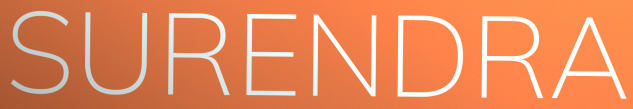
SURENDRA